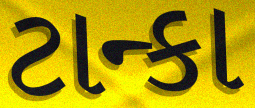
ટાન્કા